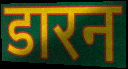
डारन